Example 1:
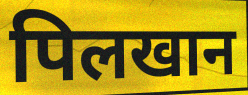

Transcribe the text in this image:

पिलखान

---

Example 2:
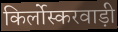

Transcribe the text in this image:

किर्लोस्करवाड़ी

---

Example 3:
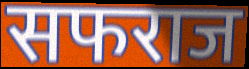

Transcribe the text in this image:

सफराज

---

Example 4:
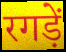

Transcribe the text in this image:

रगड़ें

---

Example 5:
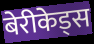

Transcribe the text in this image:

बेरीकेड्स